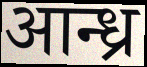
आन्ध्र